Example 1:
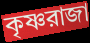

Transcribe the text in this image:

কৃষ্ণরাজা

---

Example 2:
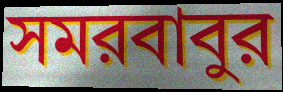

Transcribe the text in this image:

সমরবাবুর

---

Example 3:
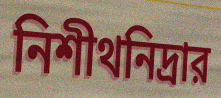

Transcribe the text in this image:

নিশীথনিদ্রার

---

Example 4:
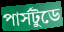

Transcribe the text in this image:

পার্সটুডে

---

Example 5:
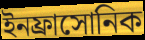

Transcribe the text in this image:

ইনফ্রাসোনিক